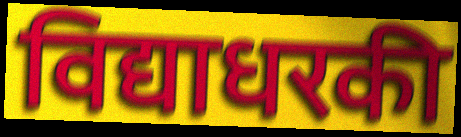
विद्याधरकी